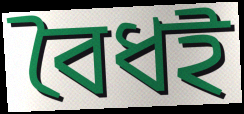
বৈধই